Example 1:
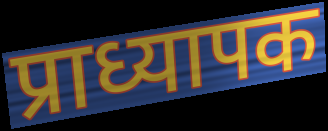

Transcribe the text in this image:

प्राध्यापक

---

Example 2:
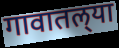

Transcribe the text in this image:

गावातल्या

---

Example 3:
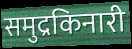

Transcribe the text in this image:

समुद्रकिनारी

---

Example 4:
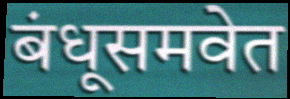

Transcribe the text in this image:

बंधूसमवेत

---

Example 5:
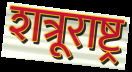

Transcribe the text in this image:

शत्रूराष्ट्र